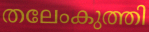
തലേംകുത്തി